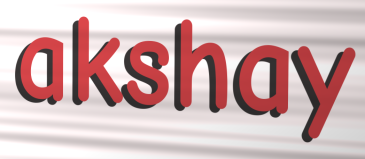
akshay